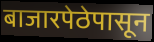
बाजारपेठेपासून